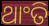
ଥାଂତି